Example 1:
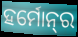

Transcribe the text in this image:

ହର୍ମୋନ୍‌ର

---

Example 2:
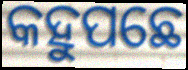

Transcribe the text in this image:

କହୁପଛେ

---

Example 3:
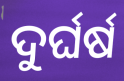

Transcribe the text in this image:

ଦୁର୍ଘର୍ଷ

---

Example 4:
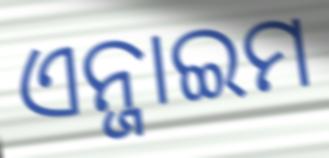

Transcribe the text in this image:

ଏନ୍ଜାଇମ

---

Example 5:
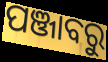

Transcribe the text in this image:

ପଞ୍ଜାବରୁ